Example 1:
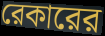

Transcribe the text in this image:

রেকারের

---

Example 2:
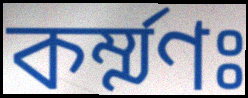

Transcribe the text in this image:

কর্ম্মণঃ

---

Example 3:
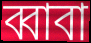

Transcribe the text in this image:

ব্বাবা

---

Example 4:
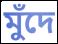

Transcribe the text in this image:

মুঁদে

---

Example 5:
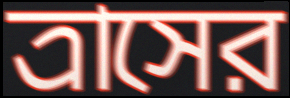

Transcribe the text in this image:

ত্রাসের